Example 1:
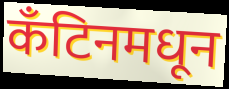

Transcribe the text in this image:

कँटिनमधून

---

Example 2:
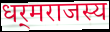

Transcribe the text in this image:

धर्मराजस्य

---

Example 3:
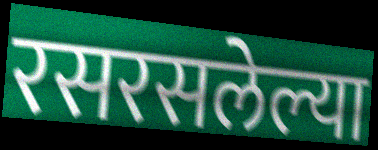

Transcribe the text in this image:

रसरसलेल्या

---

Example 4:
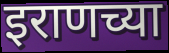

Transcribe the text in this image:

इराणच्या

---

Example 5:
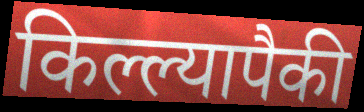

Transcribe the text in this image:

किल्ल्यापैकी